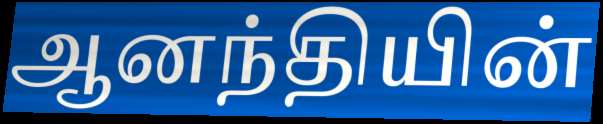
ஆனந்தியின்